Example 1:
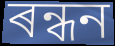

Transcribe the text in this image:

ৰন্ধন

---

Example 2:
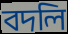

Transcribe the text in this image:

বদলি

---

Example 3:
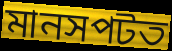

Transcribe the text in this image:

মানসপটত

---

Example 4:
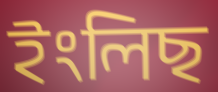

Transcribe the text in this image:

ইংলিছ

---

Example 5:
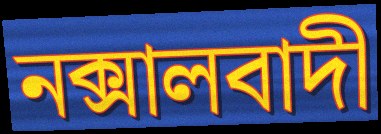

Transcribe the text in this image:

নক্সালবাদী